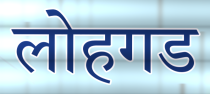
लोहगड